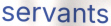
servants